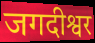
जगदीश्वर